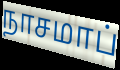
நாசமாப்